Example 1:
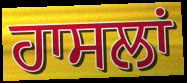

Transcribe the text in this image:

ਹਾਸਲਾਂ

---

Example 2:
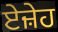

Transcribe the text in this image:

ਏਜ਼ੇਹ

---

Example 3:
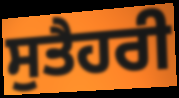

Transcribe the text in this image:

ਸੁਤੈਹਰੀ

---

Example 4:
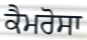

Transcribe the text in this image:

ਕੈਮਰੋਸਾ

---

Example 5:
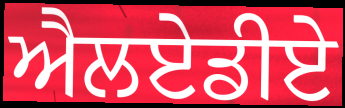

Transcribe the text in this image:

ਐਲਏਡੀਏ